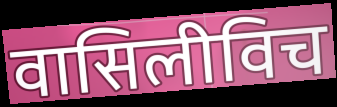
वासिलीविच